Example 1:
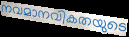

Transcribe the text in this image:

നവമാനവികതയുടെ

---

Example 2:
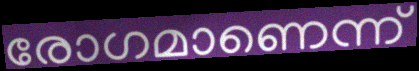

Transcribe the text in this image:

രോഗമാണെന്ന്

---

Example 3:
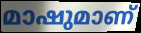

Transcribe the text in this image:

മാഷുമാണ്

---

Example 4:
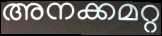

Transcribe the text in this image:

അനക്കമറ്റ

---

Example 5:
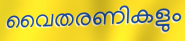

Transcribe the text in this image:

വൈതരണികളും